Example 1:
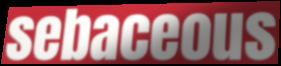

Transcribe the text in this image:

sebaceous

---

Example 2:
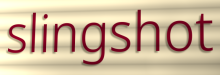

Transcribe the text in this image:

slingshot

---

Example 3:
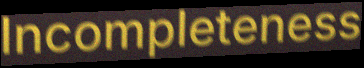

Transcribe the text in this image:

Incompleteness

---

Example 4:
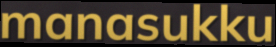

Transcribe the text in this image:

manasukku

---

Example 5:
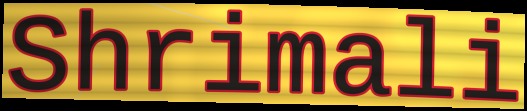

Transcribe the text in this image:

Shrimali